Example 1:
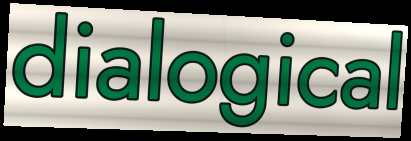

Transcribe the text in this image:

dialogical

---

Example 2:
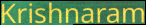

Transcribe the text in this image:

Krishnaram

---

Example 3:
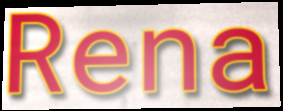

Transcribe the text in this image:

Rena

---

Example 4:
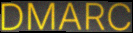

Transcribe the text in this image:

DMARC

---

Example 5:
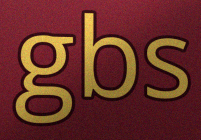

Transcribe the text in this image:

gbs